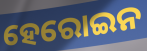
ହେରୋଇନ